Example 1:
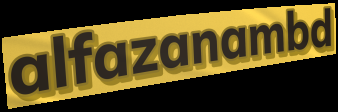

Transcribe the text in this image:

alfazanambd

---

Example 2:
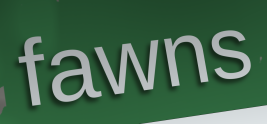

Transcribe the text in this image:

fawns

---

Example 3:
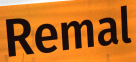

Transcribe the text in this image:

Remal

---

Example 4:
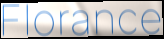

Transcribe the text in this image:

Florance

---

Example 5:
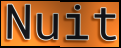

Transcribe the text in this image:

Nuit